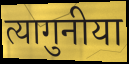
त्यागुनीया